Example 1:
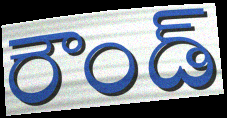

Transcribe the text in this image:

రౌండ్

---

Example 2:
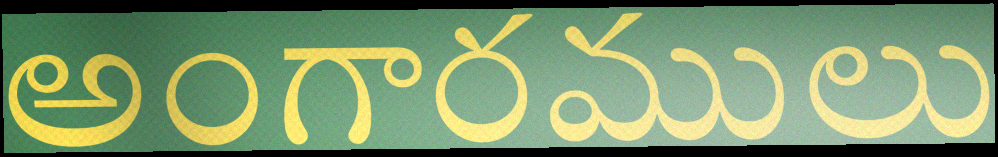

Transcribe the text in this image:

అంగారములు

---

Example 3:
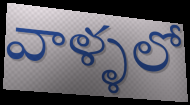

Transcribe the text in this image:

వాళ్ళలో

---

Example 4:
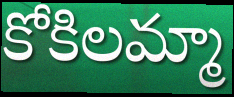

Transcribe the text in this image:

కోకిలమ్మా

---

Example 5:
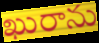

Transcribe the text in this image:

ఖురాను